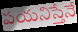
పయనిస్తేనే